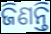
ଜିଣନ୍ତି